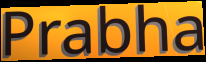
Prabha